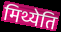
मिथ्येति